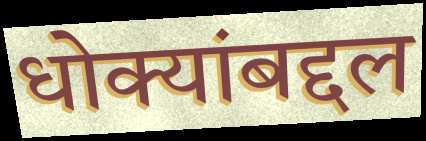
धोक्यांबद्दल